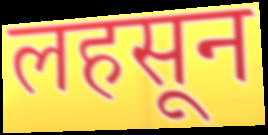
लहसून